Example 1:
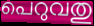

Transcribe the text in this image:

പെറുവതു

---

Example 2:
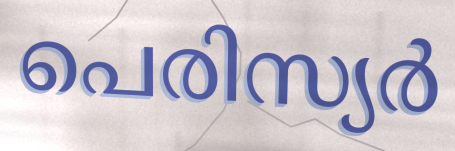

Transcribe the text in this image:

പെരിസ്യർ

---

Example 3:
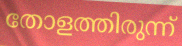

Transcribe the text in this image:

തോളത്തിരുന്ന്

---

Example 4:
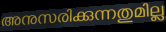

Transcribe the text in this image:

അനുസരിക്കുന്നതുമില്ല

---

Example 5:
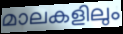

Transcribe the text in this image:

മാലകളിലും